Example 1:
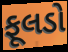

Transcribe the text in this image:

ફૂલડો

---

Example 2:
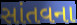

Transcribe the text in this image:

સાંતવના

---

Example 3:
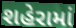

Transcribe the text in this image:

શહેરામાં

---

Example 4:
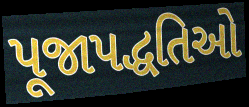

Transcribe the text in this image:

પૂજાપદ્ધતિઓ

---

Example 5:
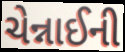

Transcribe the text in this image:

ચેન્નાઈની